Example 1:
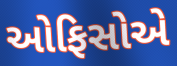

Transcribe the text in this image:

ઓફિસોએ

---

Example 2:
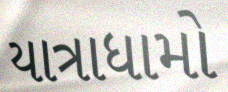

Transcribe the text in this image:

યાત્રાધામો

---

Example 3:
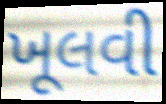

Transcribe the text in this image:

ખૂલવી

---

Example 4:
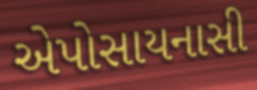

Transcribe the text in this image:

એપોસાયનાસી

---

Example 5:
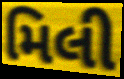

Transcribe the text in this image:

મિલી